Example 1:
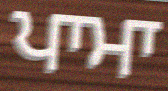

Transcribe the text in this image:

ਪਾਮਾ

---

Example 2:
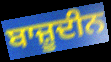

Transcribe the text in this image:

ਬਾਜ਼ੂਦੀਨ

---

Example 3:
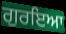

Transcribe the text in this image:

ਗੁਰਇਆ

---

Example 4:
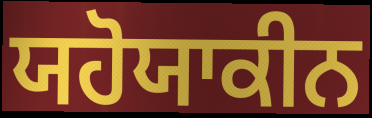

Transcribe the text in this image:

ਯਹੋਯਾਕੀਨ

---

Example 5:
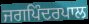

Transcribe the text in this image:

ਜਗਪਿੰਦਰਪਾਲ